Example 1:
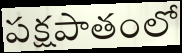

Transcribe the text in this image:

పక్షపాతంలో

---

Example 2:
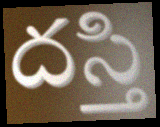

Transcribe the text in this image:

దస్తి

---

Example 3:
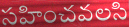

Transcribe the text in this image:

సహించవలసి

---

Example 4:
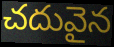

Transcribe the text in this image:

చదువైన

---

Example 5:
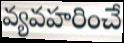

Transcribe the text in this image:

వ్యవహరించే